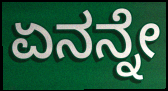
ಏನನ್ನೇ